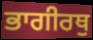
ਭਾਗੀਰਥੁ